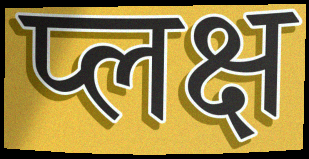
प्लक्ष